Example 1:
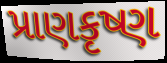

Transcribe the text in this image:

પ્રાણકૃષ્ણ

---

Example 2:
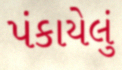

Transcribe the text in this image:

પંકાયેલું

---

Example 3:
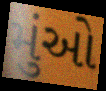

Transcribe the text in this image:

મુંઓ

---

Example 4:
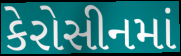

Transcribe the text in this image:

કેરોસીનમાં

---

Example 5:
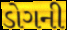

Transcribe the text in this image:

ડોગની